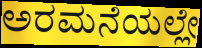
ಅರಮನೆಯಲ್ಲೇ